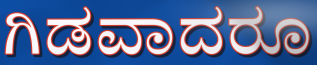
ಗಿಡವಾದರೂ